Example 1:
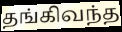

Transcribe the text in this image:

தங்கிவந்த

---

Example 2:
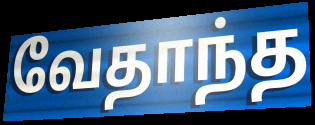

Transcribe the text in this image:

வேதாந்த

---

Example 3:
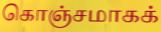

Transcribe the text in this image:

கொஞ்சமாகக்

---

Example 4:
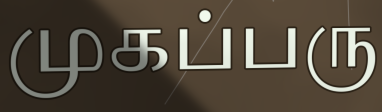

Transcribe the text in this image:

முகப்பரு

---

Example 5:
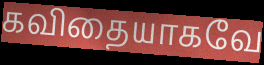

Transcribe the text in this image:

கவிதையாகவே